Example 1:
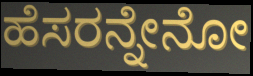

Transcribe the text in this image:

ಹೆಸರನ್ನೇನೋ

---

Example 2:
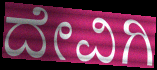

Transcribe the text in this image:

ದೇವಿಗಿ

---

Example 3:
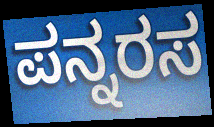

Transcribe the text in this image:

ಪನ್ನರಸ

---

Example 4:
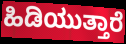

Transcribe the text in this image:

ಹಿಡಿಯುತ್ತಾರೆ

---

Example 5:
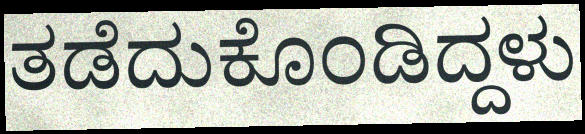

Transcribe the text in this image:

ತಡೆದುಕೊಂಡಿದ್ದಳು